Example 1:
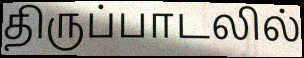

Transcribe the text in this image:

திருப்பாடலில்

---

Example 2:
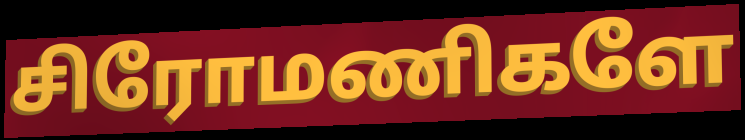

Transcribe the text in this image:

சிரோமணிகளே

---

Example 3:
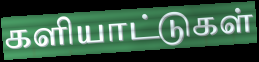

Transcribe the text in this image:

களியாட்டுகள்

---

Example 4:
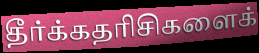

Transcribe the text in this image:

தீர்க்கதரிசிகளைக்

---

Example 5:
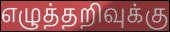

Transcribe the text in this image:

எழுத்தறிவுக்கு